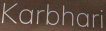
Karbhari